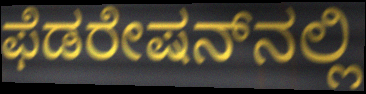
ಫೆಡರೇಷನ್‌ನಲ್ಲಿ